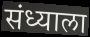
संध्याला